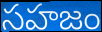
సహజం